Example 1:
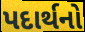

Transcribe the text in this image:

પદાર્થનો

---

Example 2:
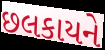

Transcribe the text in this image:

છલકાયને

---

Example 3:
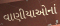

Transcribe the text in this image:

વાણીયાઓનાં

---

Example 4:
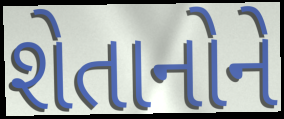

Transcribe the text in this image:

શેતાનોને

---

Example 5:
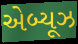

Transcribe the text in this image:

એબ્યૂઝ